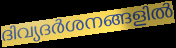
ദിവ്യദർശനങ്ങളിൽ